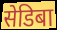
सेडिबा